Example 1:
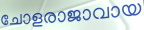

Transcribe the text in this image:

ചോളരാജാവായ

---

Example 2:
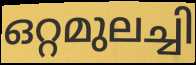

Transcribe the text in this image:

ഒറ്റമുലച്ചി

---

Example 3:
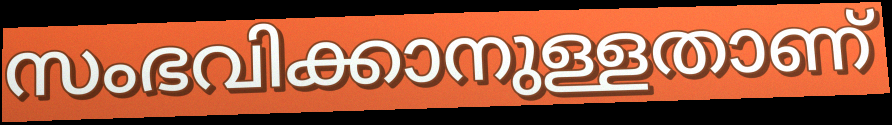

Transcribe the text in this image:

സംഭവിക്കാനുള്ളതാണ്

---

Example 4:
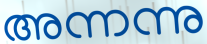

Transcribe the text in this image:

അന്നന്നു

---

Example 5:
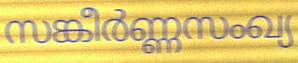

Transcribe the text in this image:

സങ്കീർണ്ണസംഖ്യ